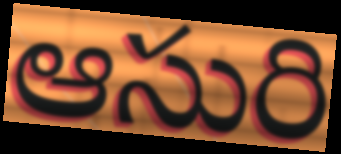
ఆసురి